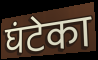
घंटेका